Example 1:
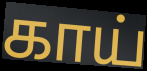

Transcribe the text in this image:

காய்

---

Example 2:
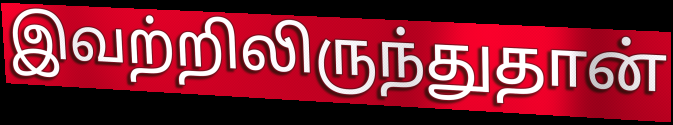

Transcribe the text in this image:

இவற்றிலிருந்துதான்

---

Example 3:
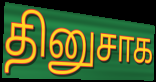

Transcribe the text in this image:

தினுசாக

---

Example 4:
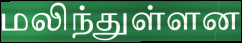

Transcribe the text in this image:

மலிந்துள்ளன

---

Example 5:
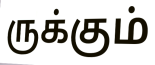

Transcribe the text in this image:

ருக்கும்